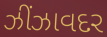
ઝીંઝાવદર